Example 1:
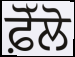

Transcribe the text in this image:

ਫ਼ੋੱਲੋ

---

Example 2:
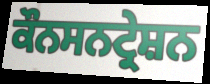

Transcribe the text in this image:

ਕੌਨਸਨਟ੍ਰੇਸ਼ਨ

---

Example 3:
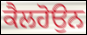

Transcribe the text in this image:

ਕੈਲਹੋਉਨ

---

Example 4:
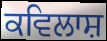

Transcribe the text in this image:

ਕਵਿਲਾਸ਼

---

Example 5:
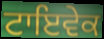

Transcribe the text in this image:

ਟਾਇਵੇਕ